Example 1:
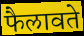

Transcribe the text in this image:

फैलावते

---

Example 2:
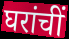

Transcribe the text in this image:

घरांचीं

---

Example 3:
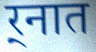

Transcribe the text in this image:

र्नात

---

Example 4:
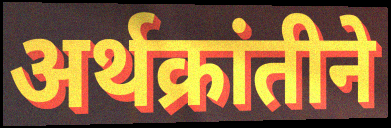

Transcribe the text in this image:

अर्थक्रांतीने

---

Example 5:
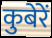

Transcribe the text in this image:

कुबेरें